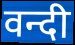
वन्दी